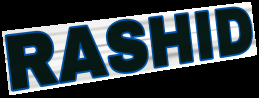
RASHID